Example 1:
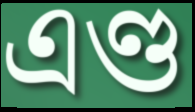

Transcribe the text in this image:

এণ্ড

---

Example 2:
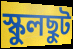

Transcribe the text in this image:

স্কুলছুট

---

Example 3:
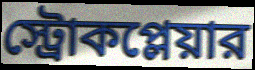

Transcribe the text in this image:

স্ট্রোকপ্লেয়ার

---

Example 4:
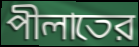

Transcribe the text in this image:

পীলাতের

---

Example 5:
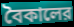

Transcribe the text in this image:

বৈকালের